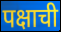
पक्षाची